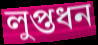
লুপ্তধন